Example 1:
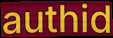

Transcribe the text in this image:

authid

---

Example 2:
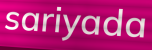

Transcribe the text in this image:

sariyada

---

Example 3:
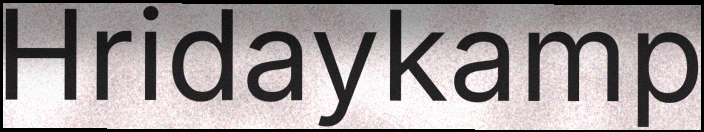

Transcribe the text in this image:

Hridaykamp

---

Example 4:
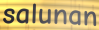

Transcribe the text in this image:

salunan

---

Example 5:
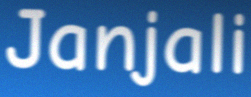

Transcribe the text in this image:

Janjali